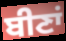
ਬੀਣਾਂ